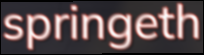
springeth